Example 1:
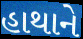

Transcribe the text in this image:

હાથાને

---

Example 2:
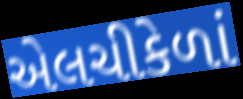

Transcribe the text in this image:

એલચીકેળાં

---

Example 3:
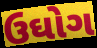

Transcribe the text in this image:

ઉઘોગ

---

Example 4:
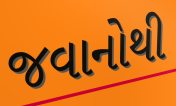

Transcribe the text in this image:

જવાનોથી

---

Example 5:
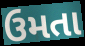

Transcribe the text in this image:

ઉમતા